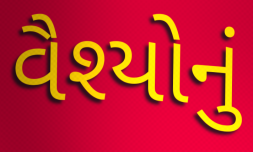
વૈશ્યોનું